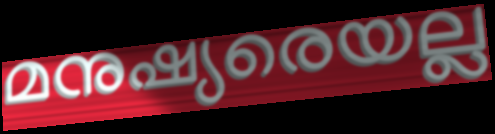
മനുഷ്യരെയല്ല